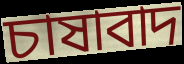
চাষাবাদ